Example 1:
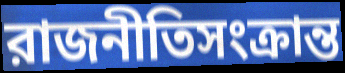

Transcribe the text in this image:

রাজনীতিসংক্রান্ত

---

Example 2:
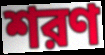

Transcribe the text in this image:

শরণ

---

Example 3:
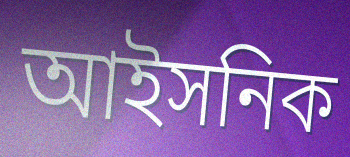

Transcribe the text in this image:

আইসনিক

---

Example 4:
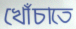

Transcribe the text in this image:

খোঁচাতে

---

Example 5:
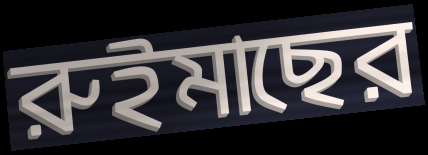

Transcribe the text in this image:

রুইমাছের